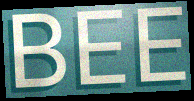
BEE